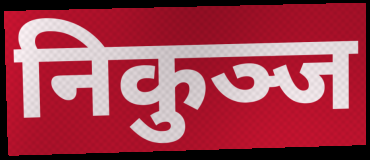
निकुञ्ज